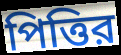
পিত্তির